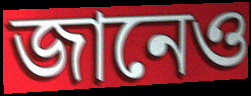
জানেও